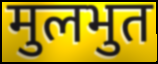
मुलभुत